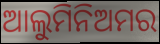
ଆଲୁମିନିଅମର